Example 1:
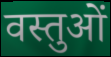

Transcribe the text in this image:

वस्तुओं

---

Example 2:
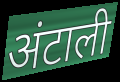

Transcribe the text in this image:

अंटाली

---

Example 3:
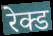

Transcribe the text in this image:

रेक्ड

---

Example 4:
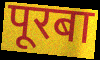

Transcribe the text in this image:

पूरबा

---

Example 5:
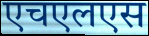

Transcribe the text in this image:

एचएलएस